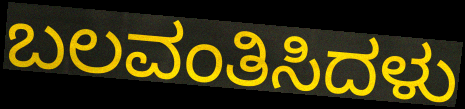
ಬಲವಂತಿಸಿದಳು